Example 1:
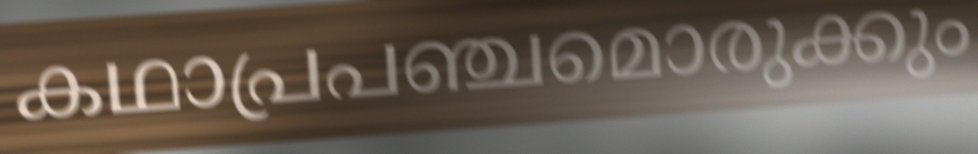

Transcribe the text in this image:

കഥാപ്രപഞ്ചമൊരുക്കും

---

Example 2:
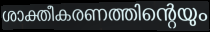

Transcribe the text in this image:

ശാക്തീകരണത്തിന്റെയും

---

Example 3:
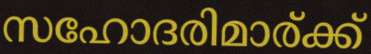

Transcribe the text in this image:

സഹോദരിമാര്ക്ക്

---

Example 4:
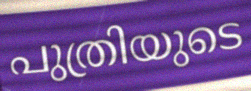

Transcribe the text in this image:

പുത്രിയുടെ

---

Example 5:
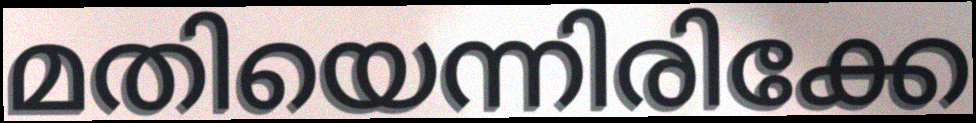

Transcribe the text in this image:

മതിയെന്നിരിക്കേ